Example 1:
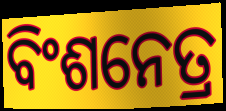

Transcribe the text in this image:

ବିଂଶନେତ୍ର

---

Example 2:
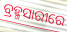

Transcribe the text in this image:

ବ୍ରହ୍ମସାରୀରେ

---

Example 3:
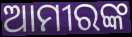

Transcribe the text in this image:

ଆମୀରଙ୍କ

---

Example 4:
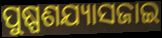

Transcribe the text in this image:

ପୁଷ୍ପଶଯ୍ୟାସଜାଇ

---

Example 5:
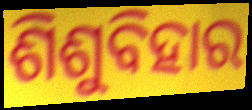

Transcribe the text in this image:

ଶିଶୁବିହାର